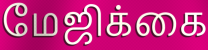
மேஜிக்கை